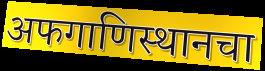
अफगाणिस्थानचा